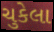
ચુકેલા